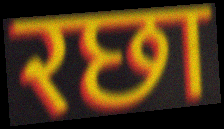
रछा